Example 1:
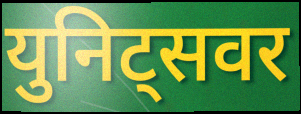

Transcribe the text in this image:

युनिट्सवर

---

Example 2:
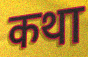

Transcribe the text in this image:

कथा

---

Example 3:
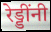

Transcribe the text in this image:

रेड्डींनी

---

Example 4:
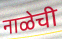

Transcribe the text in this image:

नाळेची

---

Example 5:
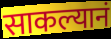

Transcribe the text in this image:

साकल्यानं